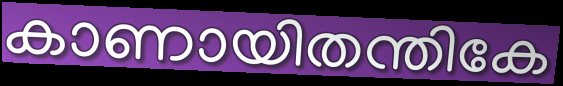
കാണായിതന്തികേ